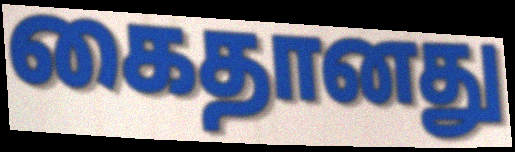
கைதானது